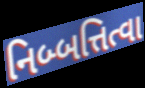
નિબ્બત્તિત્વા